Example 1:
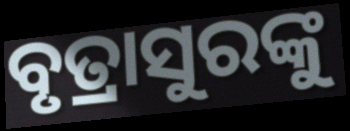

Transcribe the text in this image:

ବୃତ୍ରାସୁରଙ୍କୁ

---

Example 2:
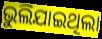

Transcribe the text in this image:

ଭୁଲିଯାଇଥିଲା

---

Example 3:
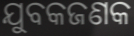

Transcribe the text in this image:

ଯୁବକଜଣକ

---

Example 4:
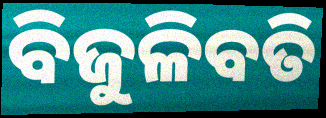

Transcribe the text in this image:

ବିଜୁଳିବତି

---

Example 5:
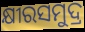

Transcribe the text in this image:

କ୍ଷୀରସମୁଦ୍ର